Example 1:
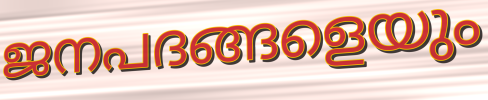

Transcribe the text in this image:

ജനപദങ്ങളെയും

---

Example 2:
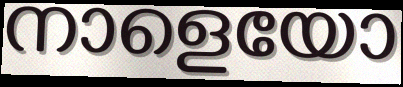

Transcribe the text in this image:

നാളെയോ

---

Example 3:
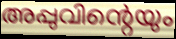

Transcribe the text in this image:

അപ്പുവിന്റെയും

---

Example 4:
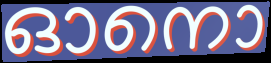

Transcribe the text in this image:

ഓനൊ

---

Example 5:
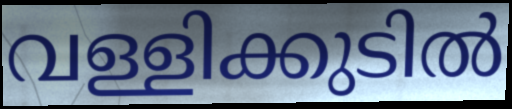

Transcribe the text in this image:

വള്ളിക്കുടിൽ